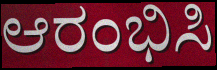
ಆರಂಭಿಸಿ